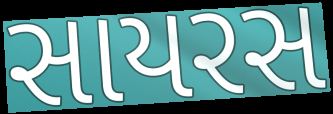
સાયરસ